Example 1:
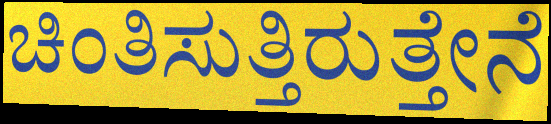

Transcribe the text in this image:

ಚಿಂತಿಸುತ್ತಿರುತ್ತೇನೆ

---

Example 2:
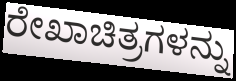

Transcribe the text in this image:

ರೇಖಾಚಿತ್ರಗಳನ್ನು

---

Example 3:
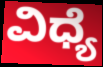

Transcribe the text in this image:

ವಿಧ್ಯೆ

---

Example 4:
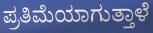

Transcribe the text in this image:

ಪ್ರತಿಮೆಯಾಗುತ್ತಾಳೆ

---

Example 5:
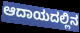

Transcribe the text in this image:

ಆದಾಯದಲ್ಲಿನ